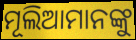
ମୂଲିଆମାନଙ୍କୁ